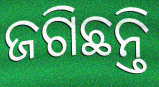
ଜଗିଛନ୍ତି